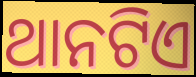
ଥାନଟିଏ